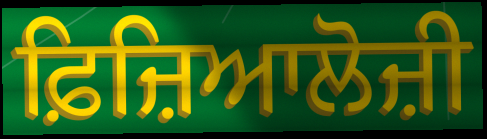
ਫ਼ਿਜ਼ਿਆਲੋਜ਼ੀ